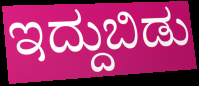
ಇದ್ದುಬಿಡು